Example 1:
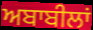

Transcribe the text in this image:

ਅਬਾਬੀਲਾਂ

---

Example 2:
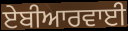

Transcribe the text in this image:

ਏਬੀਆਰਵਾਈ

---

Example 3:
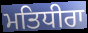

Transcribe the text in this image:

ਮਤਿਧੀਰਾ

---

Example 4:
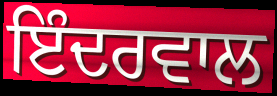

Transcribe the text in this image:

ਇੰਦਰਵਾਲ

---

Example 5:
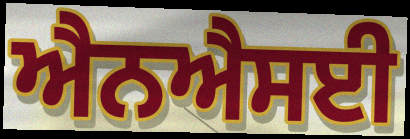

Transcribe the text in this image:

ਐਨਐਸਈ